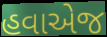
હવાએજ